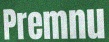
Premnu